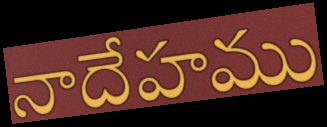
నాదేహము